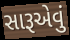
સારૂએવું